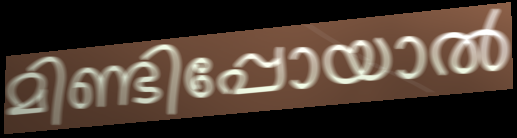
മിണ്ടിപ്പോയാൽ